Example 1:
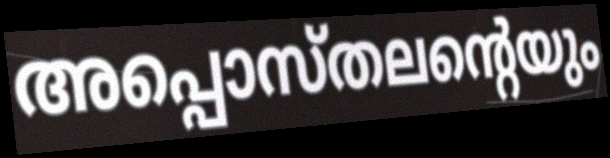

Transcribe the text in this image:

അപ്പൊസ്തലന്റെയും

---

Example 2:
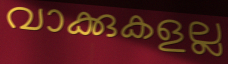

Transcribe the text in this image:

വാക്കുകളല്ല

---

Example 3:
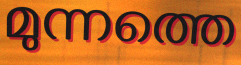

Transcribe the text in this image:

മുന്നത്തെ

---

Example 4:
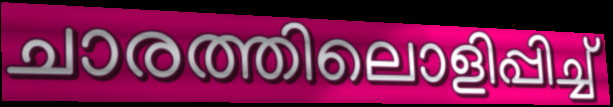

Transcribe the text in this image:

ചാരത്തിലൊളിപ്പിച്ച്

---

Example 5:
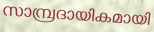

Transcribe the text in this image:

സാമ്പ്രദായികമായി